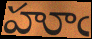
హూఁ